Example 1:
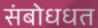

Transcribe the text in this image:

संबोधधत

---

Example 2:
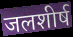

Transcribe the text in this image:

जलशीर्ष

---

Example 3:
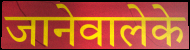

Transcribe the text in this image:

जानेवालेके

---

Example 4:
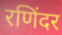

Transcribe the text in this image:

रणिंदर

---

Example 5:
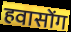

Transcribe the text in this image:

हवासोंग